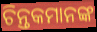
ଚିନ୍ତକମାନଙ୍କ